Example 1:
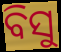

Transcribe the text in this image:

ବିସୁ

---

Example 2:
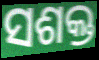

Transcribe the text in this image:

ସଶକ୍ତ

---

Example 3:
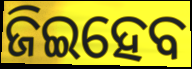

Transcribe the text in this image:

ଜିଇହେବ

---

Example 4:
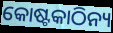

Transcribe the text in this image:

କୋଷ୍ଟକାଠିନ୍ୟ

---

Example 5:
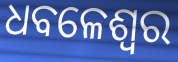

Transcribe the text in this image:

ଧବଳେଶ୍ଵର